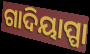
ଗାଦିୟାପ୍ପା